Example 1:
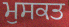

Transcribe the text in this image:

ਮੁਸਕਤ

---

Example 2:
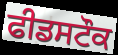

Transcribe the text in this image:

ਫੀਡਸਟੌਕ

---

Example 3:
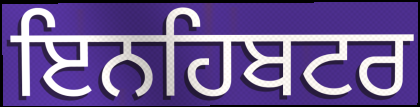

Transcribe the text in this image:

ਇਨਹਿਬਟਰ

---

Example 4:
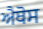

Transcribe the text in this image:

ਐਥੋਸ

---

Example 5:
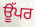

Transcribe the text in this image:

ਊੱਪਰ